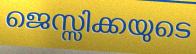
ജെസ്സിക്കയുടെ